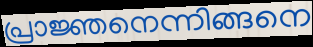
പ്രാജ്ഞനെന്നിങ്ങനെ